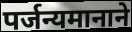
पर्जन्यमानाने